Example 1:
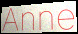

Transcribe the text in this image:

Anne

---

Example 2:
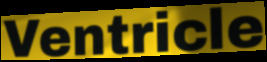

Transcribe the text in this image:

Ventricle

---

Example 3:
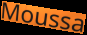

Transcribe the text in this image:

Moussa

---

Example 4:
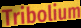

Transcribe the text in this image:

Tribolium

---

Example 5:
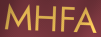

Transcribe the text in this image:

MHFA